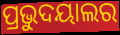
ପ୍ରଭୁଦୟାଲର